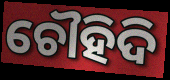
ଚୌହିଦି